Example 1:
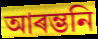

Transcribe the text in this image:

আৰম্ভনি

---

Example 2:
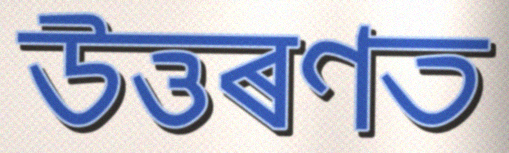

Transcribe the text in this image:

উত্তৰণত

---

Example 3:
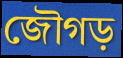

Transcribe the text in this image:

জৌগড়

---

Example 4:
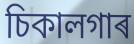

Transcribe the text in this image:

চিকালগাৰ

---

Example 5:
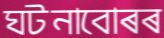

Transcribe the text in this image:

ঘটনাবোৰৰ